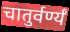
चातुर्वर्ण्यं